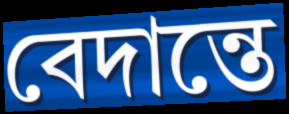
বেদান্তে